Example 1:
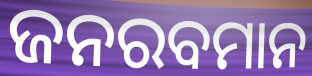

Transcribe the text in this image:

ଜନରବମାନ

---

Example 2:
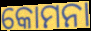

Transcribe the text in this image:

କୋମନା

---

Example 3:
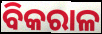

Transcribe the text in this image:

ବିକରାଳ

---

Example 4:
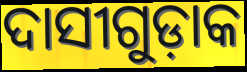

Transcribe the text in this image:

ଦାସୀଗୁଡ଼ାକ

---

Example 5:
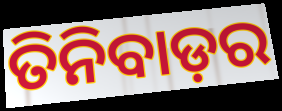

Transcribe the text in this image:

ତିନିବାଡ଼ର